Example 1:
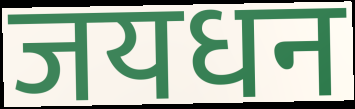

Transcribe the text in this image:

जयधन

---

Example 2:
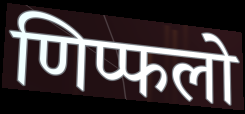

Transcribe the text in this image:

णिप्फलो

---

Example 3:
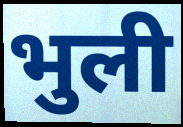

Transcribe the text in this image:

भुली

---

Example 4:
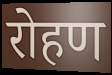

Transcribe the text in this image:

रोहण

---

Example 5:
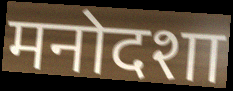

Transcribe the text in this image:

मनोदशा